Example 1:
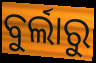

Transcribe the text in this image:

ବୁର୍ଲାରୁ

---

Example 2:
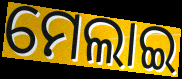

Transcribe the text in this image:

ମେଲାଇ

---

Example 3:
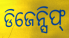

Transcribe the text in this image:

ଡିଜେନ୍ସିଫ୍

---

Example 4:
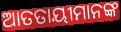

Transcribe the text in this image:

ଆତତାୟୀମାନଙ୍କ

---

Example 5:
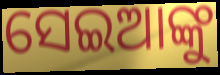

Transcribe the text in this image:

ସେଇଆଙ୍କୁ